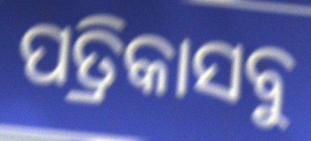
ପତ୍ରିକାସବୁ